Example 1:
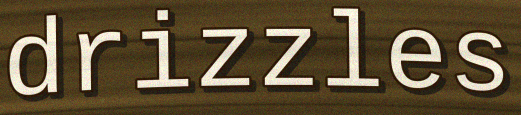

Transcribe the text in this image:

drizzles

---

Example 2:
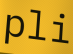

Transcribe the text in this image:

pli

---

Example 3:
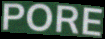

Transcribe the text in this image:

PORE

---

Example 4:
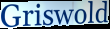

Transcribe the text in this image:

Griswold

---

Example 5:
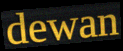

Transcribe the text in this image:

dewan